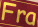
Fra